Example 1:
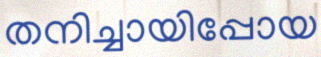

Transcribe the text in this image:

തനിച്ചായിപ്പോയ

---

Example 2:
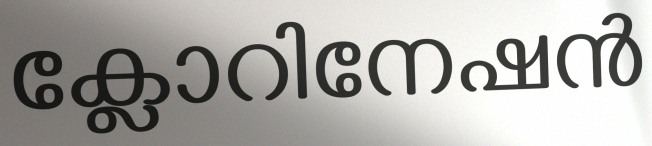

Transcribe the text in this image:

ക്ലോറിനേഷൻ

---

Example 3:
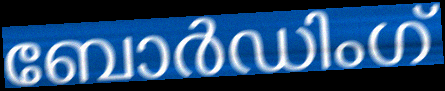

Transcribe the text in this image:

ബോർഡിംഗ്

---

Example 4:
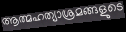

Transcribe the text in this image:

ആത്മഹത്യാശ്രമങ്ങളുടെ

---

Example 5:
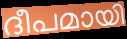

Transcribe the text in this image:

ദീപമായി